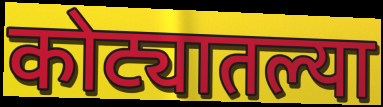
कोट्यातल्या